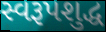
સ્વરૂપશુદ્ધ